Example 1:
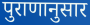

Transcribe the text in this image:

पुराणानुसार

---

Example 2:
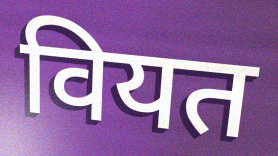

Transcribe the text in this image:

वियत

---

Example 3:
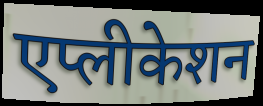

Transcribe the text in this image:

एप्‍लीकेशन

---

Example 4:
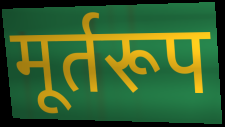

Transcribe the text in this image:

मूर्तरूप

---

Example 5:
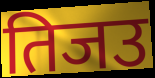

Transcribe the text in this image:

तिजउ